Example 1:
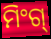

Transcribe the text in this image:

ମିଂଗ୍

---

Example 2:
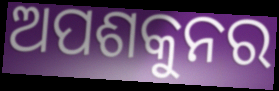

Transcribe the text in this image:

ଅପଶକୁନର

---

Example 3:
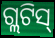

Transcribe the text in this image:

ଗ୍ଲଟିସ୍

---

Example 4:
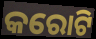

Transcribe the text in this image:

କରୋଟି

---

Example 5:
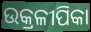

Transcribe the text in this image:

ଉକ୍ରଳୀପିକା